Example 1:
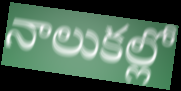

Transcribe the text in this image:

నాలుకల్లో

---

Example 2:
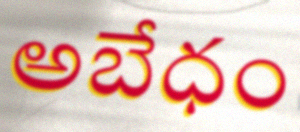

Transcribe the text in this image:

అబేధం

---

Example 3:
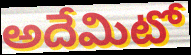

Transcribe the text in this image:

అదేమిటో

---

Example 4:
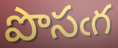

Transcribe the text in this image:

పొసఁగ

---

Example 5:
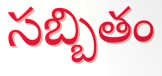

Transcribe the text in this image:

సబ్బితం